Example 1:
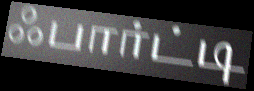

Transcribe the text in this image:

ஃபார்ட்டி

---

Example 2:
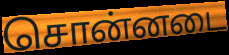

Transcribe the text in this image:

சொன்னடை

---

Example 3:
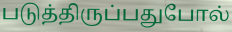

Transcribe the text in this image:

படுத்திருப்பதுபோல்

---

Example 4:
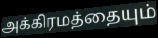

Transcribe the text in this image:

அக்கிரமத்தையும்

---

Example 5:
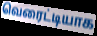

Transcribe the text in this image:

வெரைட்டியாக